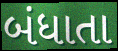
બંધાતા